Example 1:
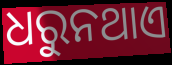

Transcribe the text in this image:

ଧରୁନଥାଏ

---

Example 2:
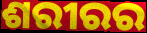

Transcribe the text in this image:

ଶରୀରର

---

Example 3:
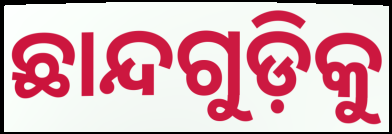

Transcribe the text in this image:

ଛାନ୍ଦଗୁଡ଼ିକୁ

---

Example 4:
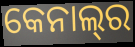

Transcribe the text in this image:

କେନାଲ୍‍ର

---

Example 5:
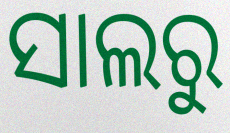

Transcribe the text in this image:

ସାଲରୁ